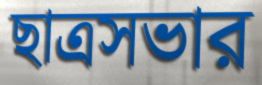
ছাত্রসভার